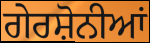
ਗੇਰਸ਼ੋਨੀਆਂ